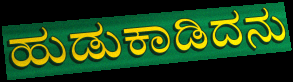
ಹುಡುಕಾಡಿದನು